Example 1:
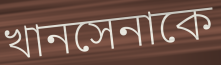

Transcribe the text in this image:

খানসেনাকে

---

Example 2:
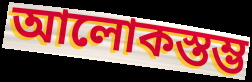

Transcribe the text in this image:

আলোকস্তম্ভ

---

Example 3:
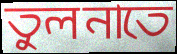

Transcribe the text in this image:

তুলনাতে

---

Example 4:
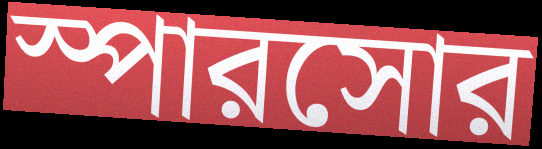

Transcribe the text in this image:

স্পারসোর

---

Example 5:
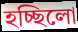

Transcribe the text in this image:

হচ্ছিলো